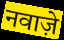
नवाज़े